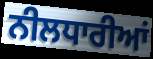
ਨੀਲਧਾਰੀਆਂ